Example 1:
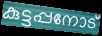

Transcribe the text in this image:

കുട്ടപ്പനോട്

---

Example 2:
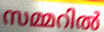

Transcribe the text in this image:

സമ്മറിൽ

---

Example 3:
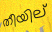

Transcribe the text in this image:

തീയില്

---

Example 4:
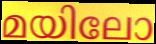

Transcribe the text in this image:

മയിലോ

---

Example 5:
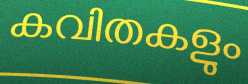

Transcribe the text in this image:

കവിതകളും